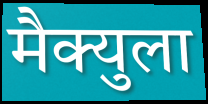
मैक्युला